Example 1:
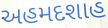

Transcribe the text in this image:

અહમદશાહ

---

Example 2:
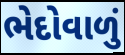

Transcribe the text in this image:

ભેદોવાળું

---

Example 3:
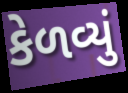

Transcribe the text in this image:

કેળવ્યું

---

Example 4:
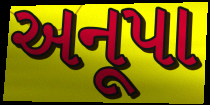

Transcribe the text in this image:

અનૂપા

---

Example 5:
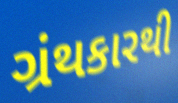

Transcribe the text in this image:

ગ્રંથકારથી